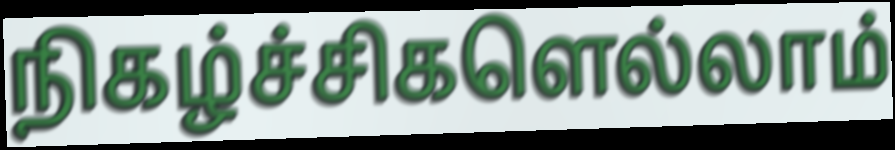
நிகழ்ச்சிகளெல்லாம்